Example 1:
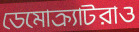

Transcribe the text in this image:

ডেমোক্র্যাটরাও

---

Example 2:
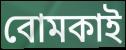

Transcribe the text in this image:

বোমকাই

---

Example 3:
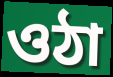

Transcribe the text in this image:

ওঠা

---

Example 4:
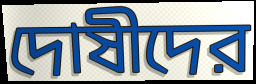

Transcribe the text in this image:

দোষীদের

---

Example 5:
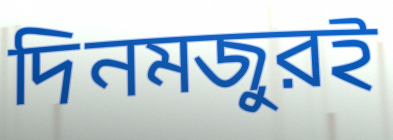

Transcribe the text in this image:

দিনমজুরই